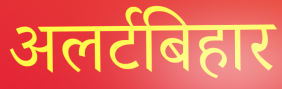
अलर्टबिहार